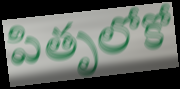
పితృలోకో